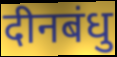
दीनबंधु